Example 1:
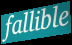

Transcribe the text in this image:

fallible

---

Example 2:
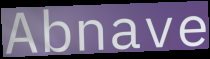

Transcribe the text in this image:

Abnave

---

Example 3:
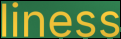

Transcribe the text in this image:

liness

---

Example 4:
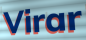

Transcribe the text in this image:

Virar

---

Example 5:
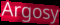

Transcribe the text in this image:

Argosy